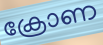
ക്രോണ